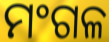
ମଂଗଳ